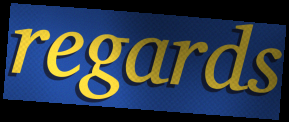
regards